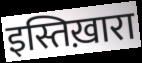
इस्तिख़ारा